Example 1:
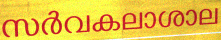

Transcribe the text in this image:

സർവകലാശാല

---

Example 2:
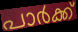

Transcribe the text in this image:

പാർക്ക്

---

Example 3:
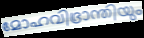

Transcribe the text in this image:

മോഹവിഭ്രാന്തിയും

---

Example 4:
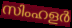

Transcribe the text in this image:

സിംഹളർ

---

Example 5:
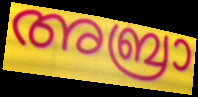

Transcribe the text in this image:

അബ്രാ